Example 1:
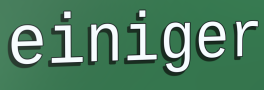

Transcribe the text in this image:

einiger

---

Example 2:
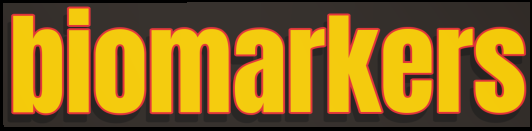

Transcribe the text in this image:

biomarkers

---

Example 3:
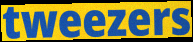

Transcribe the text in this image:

tweezers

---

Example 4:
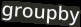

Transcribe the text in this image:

groupby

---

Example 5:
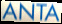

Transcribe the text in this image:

ANTA